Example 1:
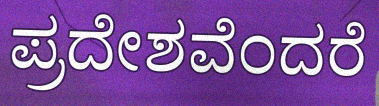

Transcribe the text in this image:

ಪ್ರದೇಶವೆಂದರೆ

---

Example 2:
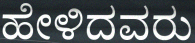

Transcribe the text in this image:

ಹೇಳಿದವರು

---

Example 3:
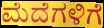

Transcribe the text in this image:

ಮೆದೆಗಳಿಗೆ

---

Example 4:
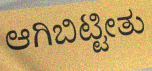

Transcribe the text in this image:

ಆಗಿಬಿಟ್ಟೀತು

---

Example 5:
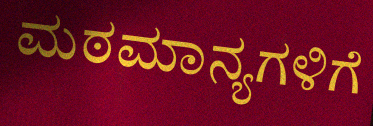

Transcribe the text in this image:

ಮಠಮಾನ್ಯಗಳಿಗೆ